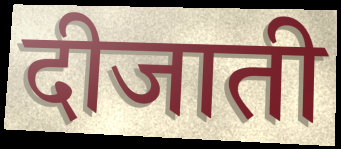
दीजाती